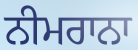
ਨੀਮਰਾਨਾ